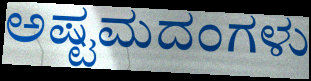
ಅಷ್ಟಮದಂಗಳು